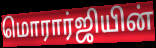
மொரார்ஜியின்